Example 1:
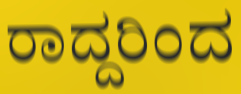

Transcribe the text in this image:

ರಾದ್ದರಿಂದ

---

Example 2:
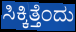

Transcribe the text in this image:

ಸಿಕ್ಕಿತ್ತೆಂದು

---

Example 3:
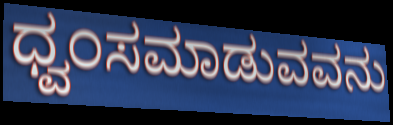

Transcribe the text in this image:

ಧ್ವಂಸಮಾಡುವವನು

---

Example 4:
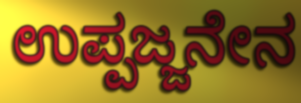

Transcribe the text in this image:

ಉಪ್ಪಜ್ಜನೇನ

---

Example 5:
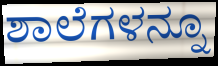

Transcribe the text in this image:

ಶಾಲೆಗಳನ್ನೂ